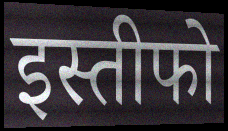
इस्तीफो